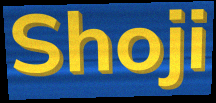
Shoji